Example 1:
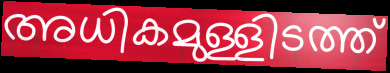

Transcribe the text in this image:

അധികമുള്ളിടത്ത്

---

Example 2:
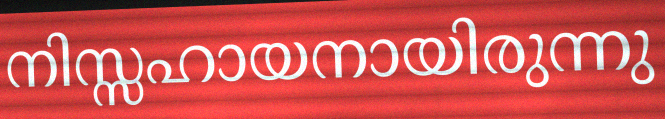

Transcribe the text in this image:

നിസ്സഹായനായിരുന്നു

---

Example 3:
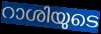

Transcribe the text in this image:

റാശിയുടെ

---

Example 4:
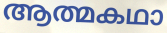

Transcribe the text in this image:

ആത്മകഥാ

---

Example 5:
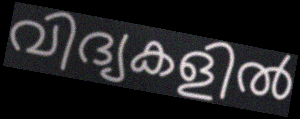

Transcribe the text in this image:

വിദ്യകളിൽ